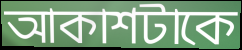
আকাশটাকে